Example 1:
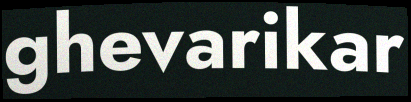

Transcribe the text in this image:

ghevarikar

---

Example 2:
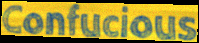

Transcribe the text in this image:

Confucious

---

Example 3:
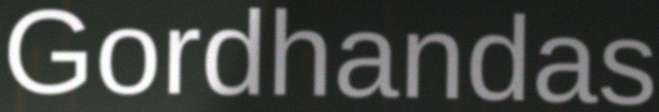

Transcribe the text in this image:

Gordhandas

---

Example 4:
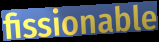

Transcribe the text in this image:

fissionable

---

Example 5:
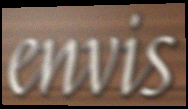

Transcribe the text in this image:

envis